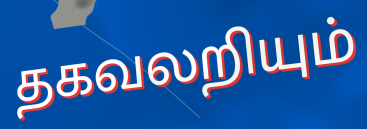
தகவலறியும்